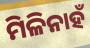
ମିଳିନାହଁ